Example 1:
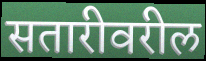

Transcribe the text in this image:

सतारीवरील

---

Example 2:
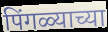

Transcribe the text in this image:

पिंगळ्याच्या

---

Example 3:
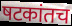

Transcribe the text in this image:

षटकांतच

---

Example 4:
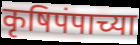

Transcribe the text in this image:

कृषिपंपाच्या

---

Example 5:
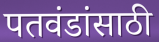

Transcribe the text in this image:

पतवंडांसाठी